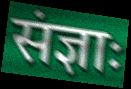
संज्ञाः